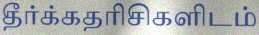
தீர்க்கதரிசிகளிடம்